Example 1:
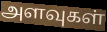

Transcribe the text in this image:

அளவுகள்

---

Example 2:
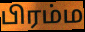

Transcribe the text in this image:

பிரம்ம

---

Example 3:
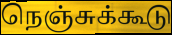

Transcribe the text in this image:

நெஞ்சுக்கூடு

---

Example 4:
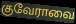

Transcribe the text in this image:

குவேராவை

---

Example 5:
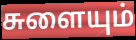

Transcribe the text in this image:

சுளையும்